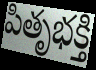
పితృభక్తి